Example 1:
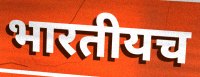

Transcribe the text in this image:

भारतीयच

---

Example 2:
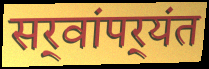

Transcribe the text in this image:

सर्वांपर्यंत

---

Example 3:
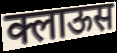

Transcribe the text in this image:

क्लाऊस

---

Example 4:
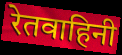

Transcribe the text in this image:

रेतवाहिनी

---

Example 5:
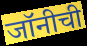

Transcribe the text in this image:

जॉनीची